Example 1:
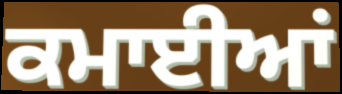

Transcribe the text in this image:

ਕਮਾਈਆਂ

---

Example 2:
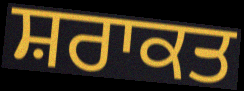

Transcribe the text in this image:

ਸ਼ਰਾਕਤ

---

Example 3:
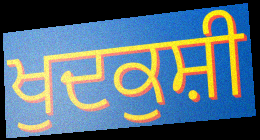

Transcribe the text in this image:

ਖੁਦਕੁਸ਼ੀ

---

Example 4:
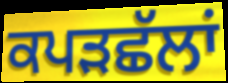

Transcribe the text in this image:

ਕਪੜਛੱਲਾਂ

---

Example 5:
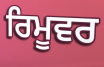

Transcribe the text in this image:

ਰਿਮੂਵਰ